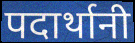
पदार्थानी